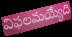
విఫలమయ్యేది